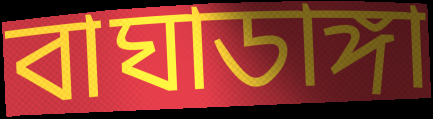
বাঘাডাঙ্গা